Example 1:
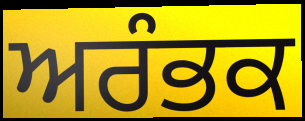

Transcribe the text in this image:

ਅਰੰਭਕ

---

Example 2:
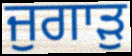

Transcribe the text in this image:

ਜੁਗਾੜੁ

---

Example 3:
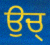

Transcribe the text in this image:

ਉਚ੍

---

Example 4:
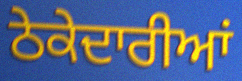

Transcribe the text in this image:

ਠੇਕੇਦਾਰੀਆਂ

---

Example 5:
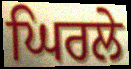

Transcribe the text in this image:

ਘਿਰਲੇ